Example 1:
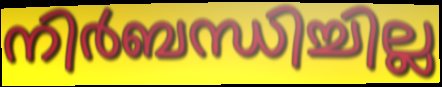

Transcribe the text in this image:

നിർബന്ധിച്ചില്ല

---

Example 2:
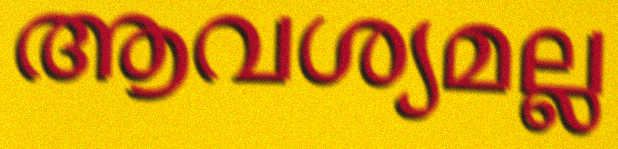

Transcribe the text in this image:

ആവശ്യമല്ല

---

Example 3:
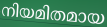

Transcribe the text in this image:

നിയമിതമായ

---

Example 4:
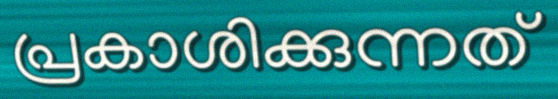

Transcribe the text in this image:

പ്രകാശിക്കുന്നത്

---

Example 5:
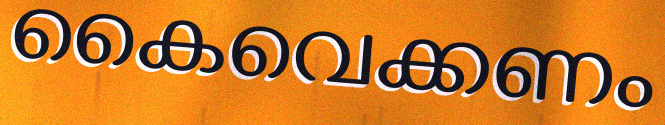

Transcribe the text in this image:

കൈവെക്കണം